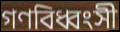
গণবিধ্বংসী